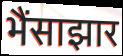
भैंसाझार